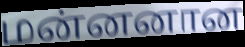
மன்னனான